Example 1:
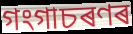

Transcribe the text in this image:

গংগাচৰণৰ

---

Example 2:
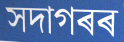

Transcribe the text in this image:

সদাগৰৰ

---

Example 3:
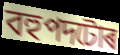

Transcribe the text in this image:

বহুপদটোৰ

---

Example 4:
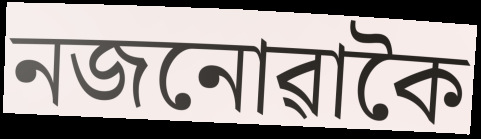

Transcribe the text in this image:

নজনোৱাকৈ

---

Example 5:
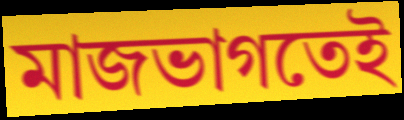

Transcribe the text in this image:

মাজভাগতেই